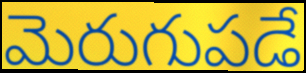
మెరుగుపడే